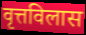
वृत्तविलास